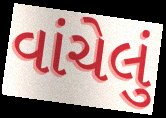
વાંચેલું